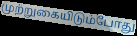
முற்றுகையிடும்போது